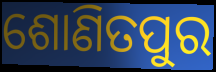
ଶୋଣିତପୁର